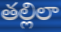
తల్లిలా